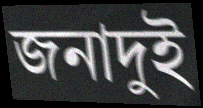
জনাদুই